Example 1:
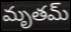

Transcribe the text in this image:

మృతమ్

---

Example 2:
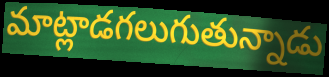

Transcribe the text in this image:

మాట్లాడగలుగుతున్నాడు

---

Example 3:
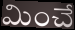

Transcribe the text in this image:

మించే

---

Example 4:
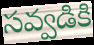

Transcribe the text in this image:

సవ్వడికి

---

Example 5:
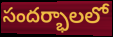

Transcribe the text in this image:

సందర్భాలలో